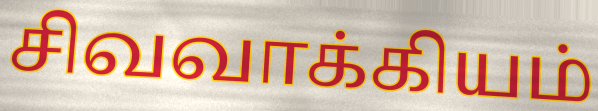
சிவவாக்கியம்